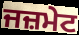
ਜਜ਼ਮੇਟ